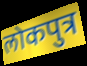
लोकपुत्र